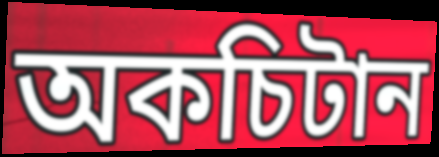
অকচিটান